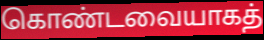
கொண்டவையாகத்